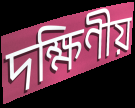
দক্ষিণীয়